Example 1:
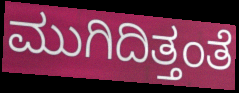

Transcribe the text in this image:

ಮುಗಿದಿತ್ತಂತೆ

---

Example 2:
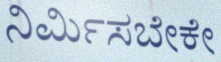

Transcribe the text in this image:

ನಿರ್ಮಿಸಬೇಕೇ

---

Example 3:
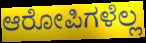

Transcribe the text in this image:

ಆರೋಪಿಗಳೆಲ್ಲ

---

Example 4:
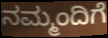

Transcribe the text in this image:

ನಮ್ಮಂದಿಗೆ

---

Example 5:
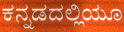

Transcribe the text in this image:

ಕನ್ನಡದಲ್ಲಿಯೂ